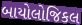
બાયોલોજિકલ